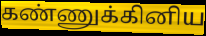
கண்ணுக்கினிய